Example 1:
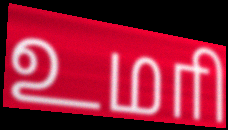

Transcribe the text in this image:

உமரி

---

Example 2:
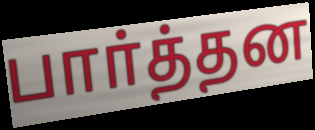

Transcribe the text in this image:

பார்த்தன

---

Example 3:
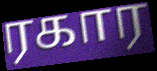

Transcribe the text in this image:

ரகார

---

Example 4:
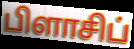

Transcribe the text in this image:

பிளாசிப்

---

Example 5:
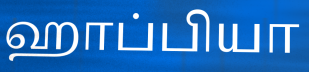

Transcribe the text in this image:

ஹாப்பியா